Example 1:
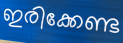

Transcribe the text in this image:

ഇരിക്കേണ്ട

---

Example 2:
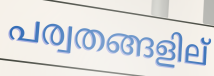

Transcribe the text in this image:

പര്വതങ്ങളില്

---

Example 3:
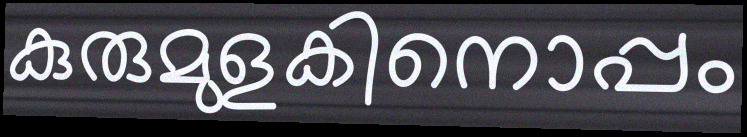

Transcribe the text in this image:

കുരുമുളകിനൊപ്പം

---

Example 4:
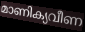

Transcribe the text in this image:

മാണിക്യവീണ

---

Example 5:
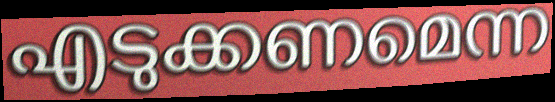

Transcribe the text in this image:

എടുക്കണമെന്ന